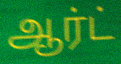
ஆர்ட்